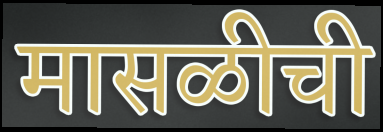
मासळीची